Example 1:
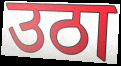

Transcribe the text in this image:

उठा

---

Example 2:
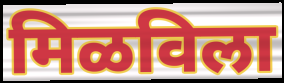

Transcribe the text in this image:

मिळविला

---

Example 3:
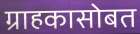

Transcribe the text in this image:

ग्राहकासोबत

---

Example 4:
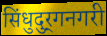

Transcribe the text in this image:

सिंधुदुर्गनगरी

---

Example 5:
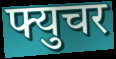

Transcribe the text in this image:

फ्युचर